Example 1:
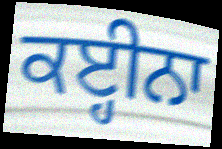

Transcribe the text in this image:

ਕੲ੍ਹੀਨਾ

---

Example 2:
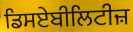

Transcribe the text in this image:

ਡਿਸਏਬੀਲਿਟੀਜ਼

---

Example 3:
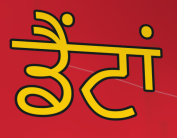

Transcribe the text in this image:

ਡੈਂਟਾਂ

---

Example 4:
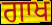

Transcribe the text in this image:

ਗਾਖ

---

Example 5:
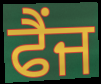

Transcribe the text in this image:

ਫੈਂਜ